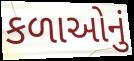
કળાઓનું